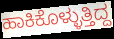
ಹಾಕಿಕೊಳ್ಳುತ್ತಿದ್ದ